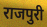
राजपुरी